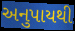
અનુપાયથી